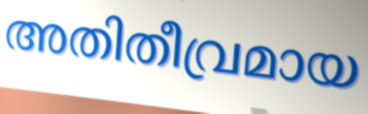
അതിതീവ്രമായ